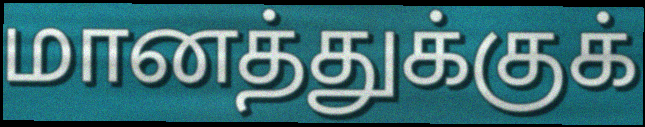
மானத்துக்குக்